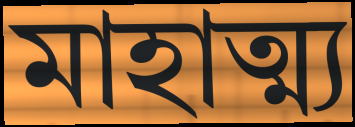
মাহাত্ম্য